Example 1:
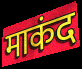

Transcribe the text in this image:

माकंद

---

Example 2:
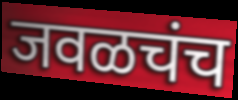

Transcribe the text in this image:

जवळचंच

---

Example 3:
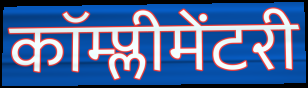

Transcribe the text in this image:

कॉम्प्लीमेंटरी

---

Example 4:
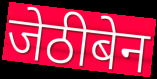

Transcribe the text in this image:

जेठीबेन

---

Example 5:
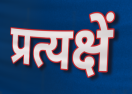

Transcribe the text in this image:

प्रत्यक्षें